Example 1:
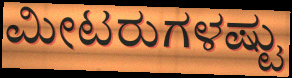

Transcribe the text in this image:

ಮೀಟರುಗಳಷ್ಟು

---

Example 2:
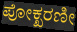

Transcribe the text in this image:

ಪೋಕ್ಖರಣೀ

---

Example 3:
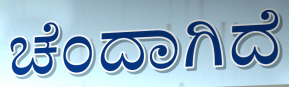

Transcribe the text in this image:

ಚೆಂದಾಗಿದೆ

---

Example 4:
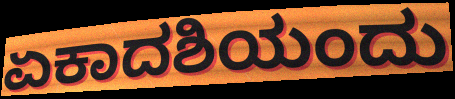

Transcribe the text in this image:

ಏಕಾದಶಿಯಂದು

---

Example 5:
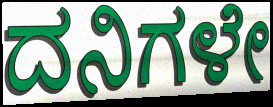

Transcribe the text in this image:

ದನಿಗಳೇ